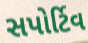
સપોર્ટિવ